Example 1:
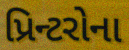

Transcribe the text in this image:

પ્રિન્ટરોના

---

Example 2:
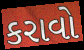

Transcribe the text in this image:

કરાવો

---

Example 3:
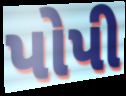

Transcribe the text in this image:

પોપી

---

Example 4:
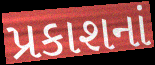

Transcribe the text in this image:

પ્રકાશનાં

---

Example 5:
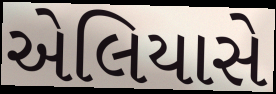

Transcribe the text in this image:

એલિયાસે